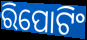
ରିପୋଟିଂ